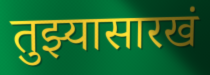
तुझ्यासारखं